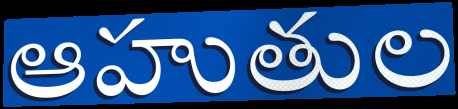
ఆహుతుల